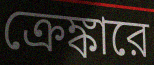
ক্রেঙ্কারে